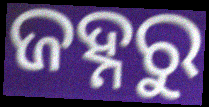
ଜହ୍ନରୁ